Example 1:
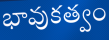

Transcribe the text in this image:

భావుకత్వం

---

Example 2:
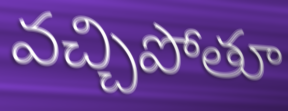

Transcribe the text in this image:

వచ్చిపోతూ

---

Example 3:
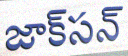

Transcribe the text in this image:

జాక్‌సన్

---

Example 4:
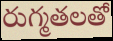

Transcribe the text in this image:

రుగ్మతలతో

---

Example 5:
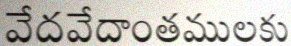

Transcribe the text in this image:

వేదవేదాంతములకు